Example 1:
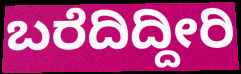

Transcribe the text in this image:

ಬರೆದಿದ್ದೀರಿ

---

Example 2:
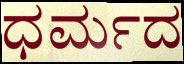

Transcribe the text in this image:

ಧರ್ಮದ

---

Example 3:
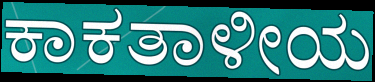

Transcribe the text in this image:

ಕಾಕತಾಳೀಯ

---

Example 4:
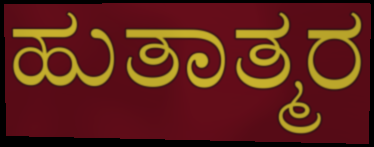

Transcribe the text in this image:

ಹುತಾತ್ಮರ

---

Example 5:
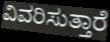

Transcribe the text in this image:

ವಿವರಿಸುತ್ತಾರೆ